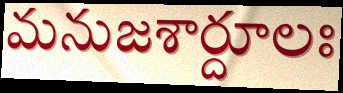
మనుజశార్దూలః